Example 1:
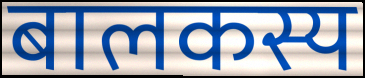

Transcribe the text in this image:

बालकस्य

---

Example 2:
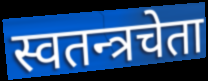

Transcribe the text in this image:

स्वतन्त्रचेता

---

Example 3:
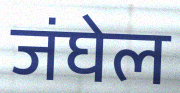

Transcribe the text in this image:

जंघेल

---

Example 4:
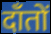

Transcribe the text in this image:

दाँतों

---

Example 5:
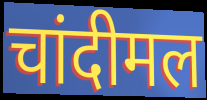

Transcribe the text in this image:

चांदीमल